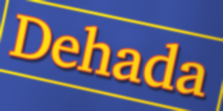
Dehada